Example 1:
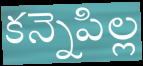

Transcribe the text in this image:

కన్నెపిల్ల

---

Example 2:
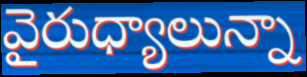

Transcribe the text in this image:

వైరుధ్యాలున్నా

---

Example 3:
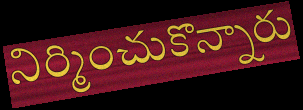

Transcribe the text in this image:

నిర్మించుకొన్నారు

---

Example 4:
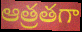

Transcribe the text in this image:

ఆత్రతగా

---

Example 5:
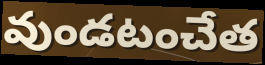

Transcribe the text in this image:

వుండటంచేత